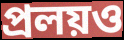
প্রলয়ও